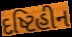
દષ્ટિહીન